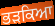
ਭੜਕਿਆ